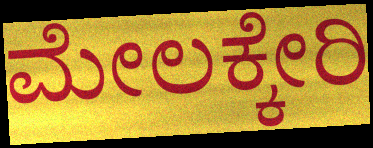
ಮೇಲಕ್ಕೇರಿ